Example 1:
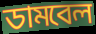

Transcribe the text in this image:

ডামবেল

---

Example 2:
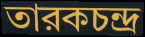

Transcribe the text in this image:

তারকচন্দ্র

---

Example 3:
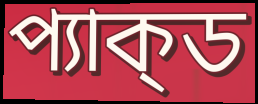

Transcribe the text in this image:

প্যাক্‌ড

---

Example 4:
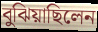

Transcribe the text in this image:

বুঝিয়াছিলেন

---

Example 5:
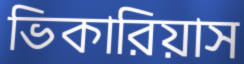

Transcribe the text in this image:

ভিকারিয়াস